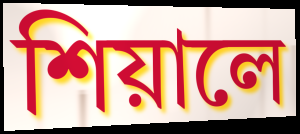
শিয়ালে